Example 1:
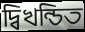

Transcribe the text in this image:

দ্বিখন্ডিত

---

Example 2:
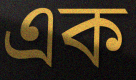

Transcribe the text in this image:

এক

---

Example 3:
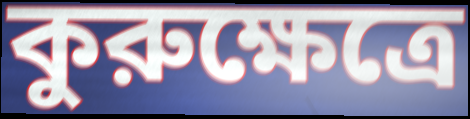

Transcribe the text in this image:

কুরুক্ষেত্রে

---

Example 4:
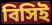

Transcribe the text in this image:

বিসিই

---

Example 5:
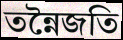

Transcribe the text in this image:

তন্নৈজতি